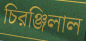
চিরঞ্জিলাল